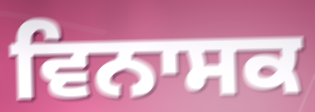
ਵਿਨਾਸਕ